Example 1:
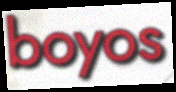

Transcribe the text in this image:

boyos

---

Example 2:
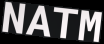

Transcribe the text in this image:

NATM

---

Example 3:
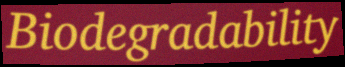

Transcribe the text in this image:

Biodegradability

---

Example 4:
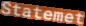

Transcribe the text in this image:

Statemet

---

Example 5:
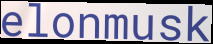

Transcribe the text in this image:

elonmusk